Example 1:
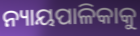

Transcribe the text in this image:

ନ୍ୟାୟପାଳିକାକୁ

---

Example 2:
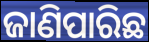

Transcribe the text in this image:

ଜାଣିପାରିଛ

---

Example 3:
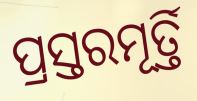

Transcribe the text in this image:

ପ୍ରସ୍ତରମୂର୍ତ୍ତି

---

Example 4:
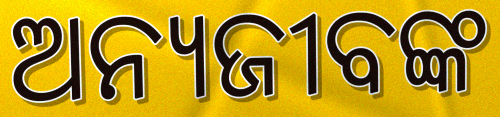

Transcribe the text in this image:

ଅନ୍ୟଜୀବଙ୍କ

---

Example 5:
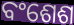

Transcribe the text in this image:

ବଂଶେଶ